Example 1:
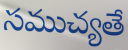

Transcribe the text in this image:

సముచ్యతే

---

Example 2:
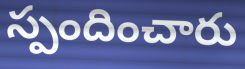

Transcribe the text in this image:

స్పందించారు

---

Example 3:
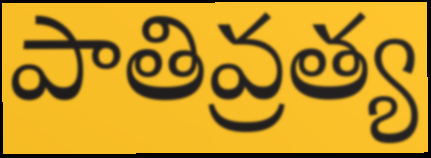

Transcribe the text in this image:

పాతివ్రత్య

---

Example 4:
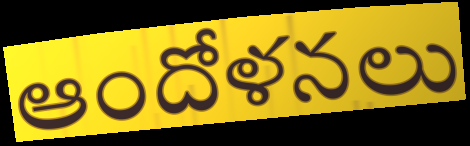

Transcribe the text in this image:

ఆందోళనలు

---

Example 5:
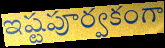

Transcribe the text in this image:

ఇష్టపూర్వకంగా